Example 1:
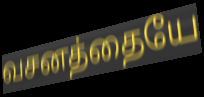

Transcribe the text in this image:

வசனத்தையே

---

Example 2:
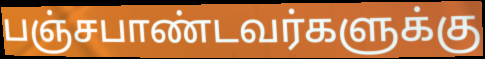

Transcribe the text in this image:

பஞ்சபாண்டவர்களுக்கு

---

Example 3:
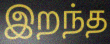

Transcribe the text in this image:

இறந்த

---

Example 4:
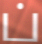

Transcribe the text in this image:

ப்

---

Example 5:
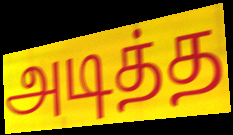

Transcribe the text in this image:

அடித்த